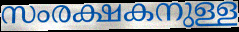
സംരക്ഷകനുള്ള